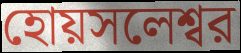
হোয়সলেশ্বর